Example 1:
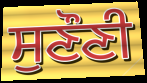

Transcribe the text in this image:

ਸੁਣੌਣੀ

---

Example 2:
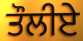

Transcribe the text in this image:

ਤੌਲੀਏ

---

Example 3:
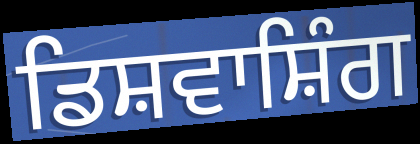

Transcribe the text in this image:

ਡਿਸ਼ਵਾਸ਼ਿੰਗ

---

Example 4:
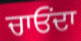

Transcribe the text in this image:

ਚਾਓਂਦਾ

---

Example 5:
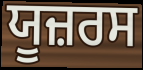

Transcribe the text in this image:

ਯੂਜ਼ਰਸ